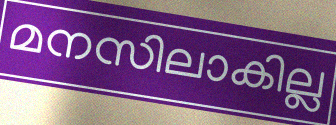
മനസിലാകില്ല